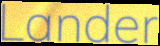
Lander